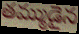
తమ్ముడైన